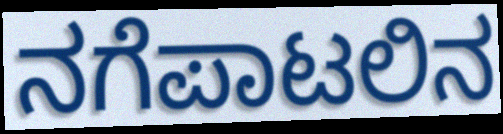
ನಗೆಪಾಟಲಿನ